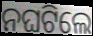
ନଘଟିଲେ